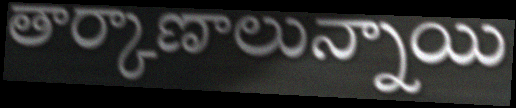
తార్కాణాలున్నాయి